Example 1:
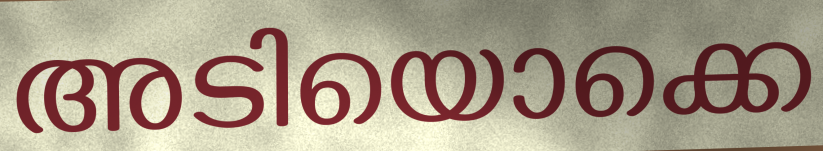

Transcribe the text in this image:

അടിയൊക്കെ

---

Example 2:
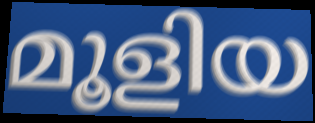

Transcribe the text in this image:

മൂളിയ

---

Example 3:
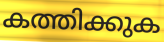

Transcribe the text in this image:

കത്തിക്കുക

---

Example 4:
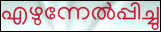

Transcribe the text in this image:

എഴുന്നേൽപ്പിച്ചു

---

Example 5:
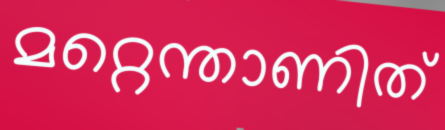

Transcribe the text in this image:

മറ്റെന്താണിത്